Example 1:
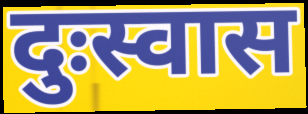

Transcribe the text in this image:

दुःस्वास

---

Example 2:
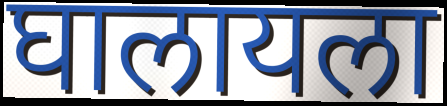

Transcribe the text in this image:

घालायला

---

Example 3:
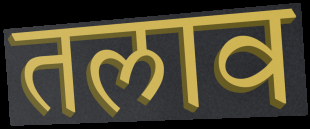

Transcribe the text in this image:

तलाव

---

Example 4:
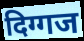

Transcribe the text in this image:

दिग्गज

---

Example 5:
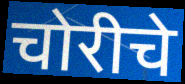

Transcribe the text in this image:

चोरीचे